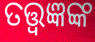
ତତ୍ତ୍ଵଜ୍ଞଙ୍କ